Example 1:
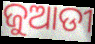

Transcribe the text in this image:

ଜୁଆଡୀ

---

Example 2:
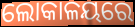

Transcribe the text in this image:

ଲୋକାଳୟରେ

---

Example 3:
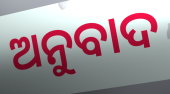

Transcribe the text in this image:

ଅନୁବାଦ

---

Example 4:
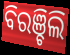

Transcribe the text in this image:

ବିରଞ୍ଚିଲି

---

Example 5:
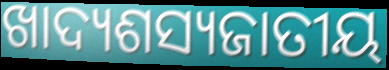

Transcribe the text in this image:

ଖାଦ୍ୟଶସ୍ୟଜାତୀୟ